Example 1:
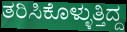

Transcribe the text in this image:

ತರಿಸಿಕೊಳ್ಳುತ್ತಿದ್ದ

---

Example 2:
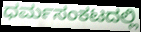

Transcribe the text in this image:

ಧರ್ಮಸಂಕಟದಲ್ಲಿ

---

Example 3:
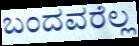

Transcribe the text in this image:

ಬಂದವರೆಲ್ಲ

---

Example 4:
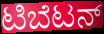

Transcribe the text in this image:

ಟಿಬೆಟನ್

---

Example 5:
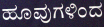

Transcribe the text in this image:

ಹೂವುಗಳಿಂದ